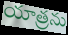
యాత్రను